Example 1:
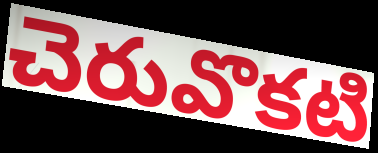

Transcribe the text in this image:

చెరువొకటి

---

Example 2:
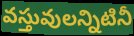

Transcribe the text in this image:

వస్తువులన్నిటినీ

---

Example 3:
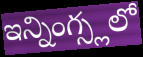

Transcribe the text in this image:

ఇన్నింగ్స్లలో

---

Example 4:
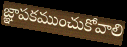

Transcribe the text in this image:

జ్ఞాపకముంచుకోవాలి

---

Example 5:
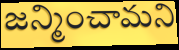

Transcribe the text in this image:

జన్మించామని